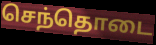
செந்தொடை